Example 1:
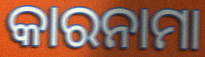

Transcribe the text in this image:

କାରନାମା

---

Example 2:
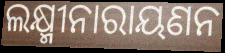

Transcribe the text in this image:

ଲକ୍ଷ୍ମୀନାରାୟଣନ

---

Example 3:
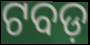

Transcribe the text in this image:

ଟବଡ଼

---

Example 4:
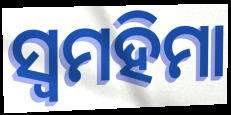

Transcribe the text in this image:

ସ୍ୱମହିମା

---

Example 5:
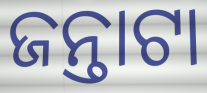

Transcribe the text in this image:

ଜନ୍ତାଟା